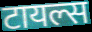
टायल्स